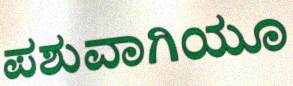
ಪಶುವಾಗಿಯೂ